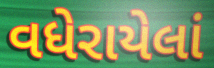
વધેરાયેલાં